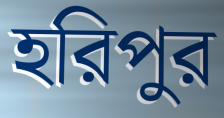
হরিপুর